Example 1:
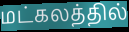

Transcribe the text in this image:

மட்கலத்தில்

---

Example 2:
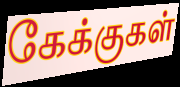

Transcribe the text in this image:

கேக்குகள்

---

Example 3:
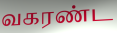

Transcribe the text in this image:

வகரண்ட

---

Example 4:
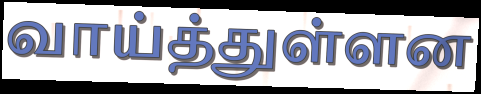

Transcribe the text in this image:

வாய்த்துள்ளன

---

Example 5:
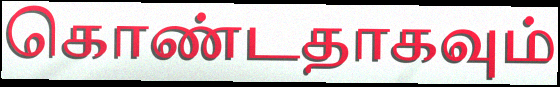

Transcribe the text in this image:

கொண்டதாகவும்